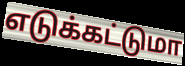
எடுக்கட்டுமா